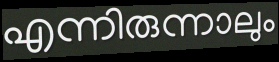
എന്നിരുന്നാലും